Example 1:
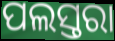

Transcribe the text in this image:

ପଲସ୍ତରା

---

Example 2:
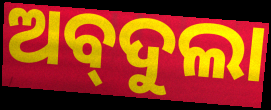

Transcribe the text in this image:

ଅବ୍‌ଦୁଲା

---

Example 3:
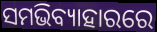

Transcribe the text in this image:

ସମଭିବ୍ୟାହାରରେ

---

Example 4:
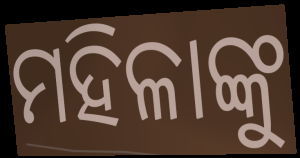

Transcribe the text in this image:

ମହିଳାଙ୍କୁ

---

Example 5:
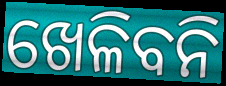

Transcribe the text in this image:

ଖେଳିବନି